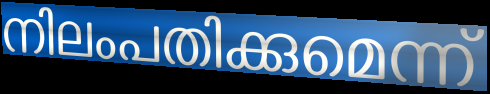
നിലംപതിക്കുമെന്ന്